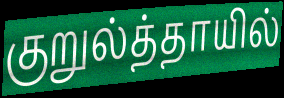
குறுல்த்தாயில்